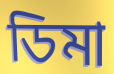
ডিমা